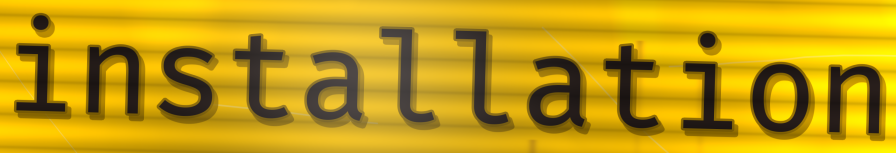
installation